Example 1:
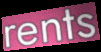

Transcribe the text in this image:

rents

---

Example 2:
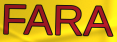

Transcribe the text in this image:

FARA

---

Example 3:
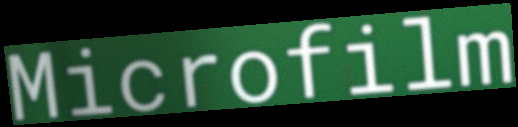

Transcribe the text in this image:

Microfilm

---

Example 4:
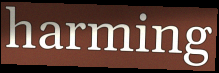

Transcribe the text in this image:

harming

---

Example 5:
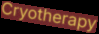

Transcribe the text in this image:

Cryotherapy